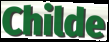
Childe